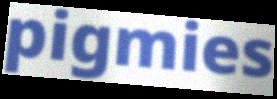
pigmies